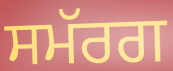
ਸਮੱਰਗ